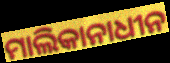
ମାଲିକାନାଧୀନ